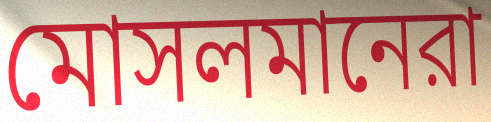
মোসলমানেরা